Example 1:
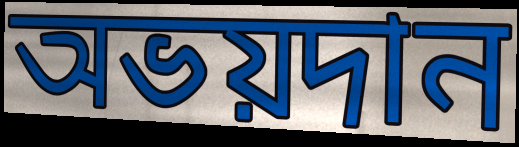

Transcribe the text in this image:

অভয়দান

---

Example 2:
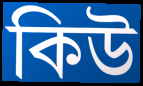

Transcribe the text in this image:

কিউ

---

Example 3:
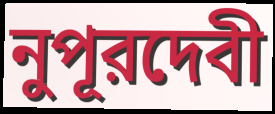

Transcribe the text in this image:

নুপূরদেবী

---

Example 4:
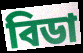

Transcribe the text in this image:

বিডা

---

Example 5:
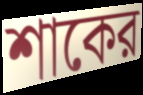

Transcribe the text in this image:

শাকের